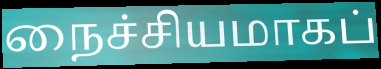
நைச்சியமாகப்